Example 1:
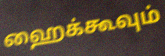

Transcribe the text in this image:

ஹைக்கூவும்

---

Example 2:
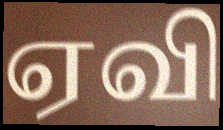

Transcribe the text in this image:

ஏவி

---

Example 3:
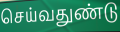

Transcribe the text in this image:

செய்வதுண்டு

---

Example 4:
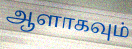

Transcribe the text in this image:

ஆளாகவும்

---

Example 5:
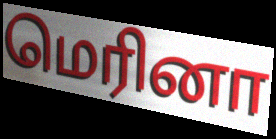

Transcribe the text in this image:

மெரினா